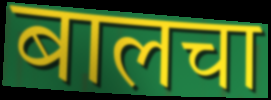
बालचा